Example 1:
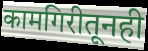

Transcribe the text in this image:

कामगिरीतूनही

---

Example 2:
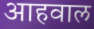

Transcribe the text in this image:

आहवाल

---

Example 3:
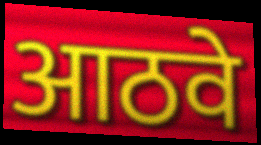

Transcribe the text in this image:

आठवे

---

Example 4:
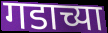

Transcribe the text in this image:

गडाच्या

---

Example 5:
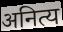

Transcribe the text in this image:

अनित्य